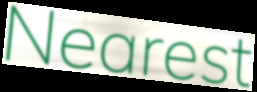
Nearest